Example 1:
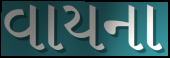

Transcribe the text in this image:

વાયના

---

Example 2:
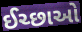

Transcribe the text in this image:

ઈચ્છાઓ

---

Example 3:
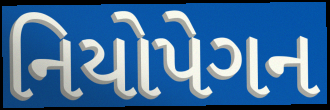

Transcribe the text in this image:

નિયોપેગન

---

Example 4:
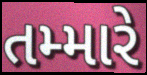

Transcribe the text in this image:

તમ્મારે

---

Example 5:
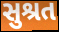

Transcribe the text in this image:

સુશ્રત